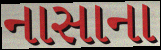
નાસાના